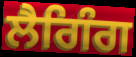
ਲੈਗਿੰਗ